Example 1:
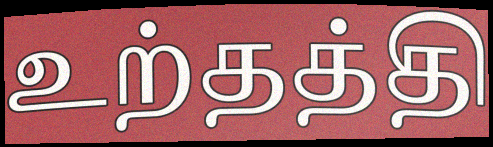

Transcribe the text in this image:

உற்தத்தி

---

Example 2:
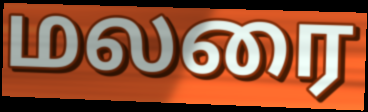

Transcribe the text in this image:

மலரை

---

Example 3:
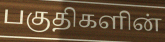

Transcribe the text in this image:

பகுதிகளின்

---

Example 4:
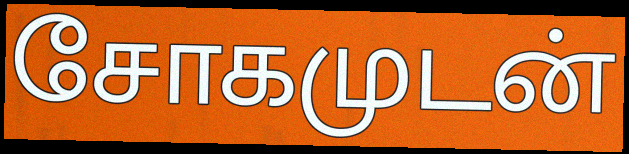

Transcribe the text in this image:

சோகமுடன்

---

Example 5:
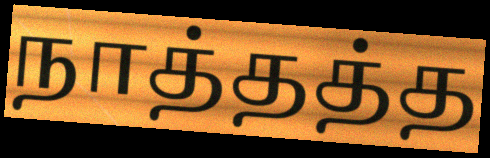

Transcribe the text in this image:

நாத்தத்த